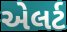
એલર્ટ